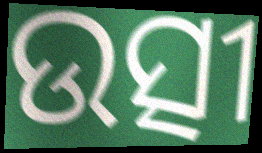
ଉତ୍ସୀ